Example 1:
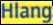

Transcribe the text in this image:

Hlang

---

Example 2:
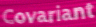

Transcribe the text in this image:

Covariant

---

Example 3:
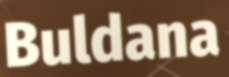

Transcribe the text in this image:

Buldana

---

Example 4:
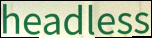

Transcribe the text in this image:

headless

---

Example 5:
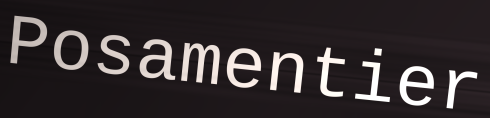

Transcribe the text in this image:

Posamentier